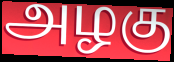
அழகு